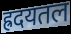
ह्रदयतल